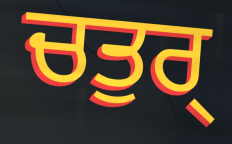
ਚਤੁਰ੍